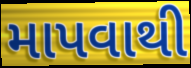
માપવાથી